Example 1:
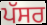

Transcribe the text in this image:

ਪੱਸਰ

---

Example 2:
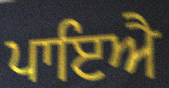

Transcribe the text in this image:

ਪਾਇਐ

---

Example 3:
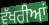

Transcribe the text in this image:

ਵੱਖਰੀਆਂ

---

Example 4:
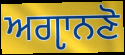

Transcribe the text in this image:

ਅਗੵਾਨਣੋ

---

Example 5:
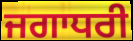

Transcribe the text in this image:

ਜਗਾਧਰੀ